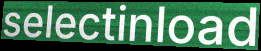
selectinload